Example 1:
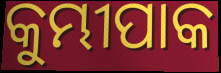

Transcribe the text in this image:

କୁମ୍ଭୀପାକ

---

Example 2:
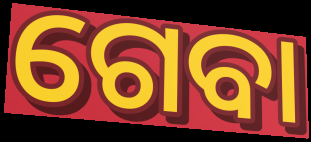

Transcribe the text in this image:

ଗେବା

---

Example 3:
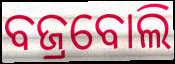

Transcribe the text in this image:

ବଜ୍ରବୋଲି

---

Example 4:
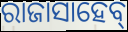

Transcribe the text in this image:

ରାଜାସାହେବ୍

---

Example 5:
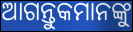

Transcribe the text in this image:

ଆଗନ୍ତୁକମାନଙ୍କୁ